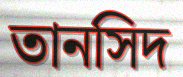
তানসিদ